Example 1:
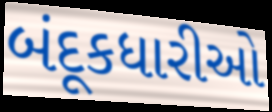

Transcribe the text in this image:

બંદૂકધારીઓ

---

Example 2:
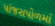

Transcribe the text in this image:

પાંજરાપોળમાં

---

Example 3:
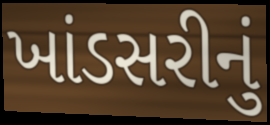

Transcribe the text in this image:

ખાંડસરીનું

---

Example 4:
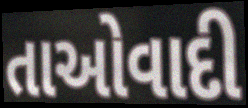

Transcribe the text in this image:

તાઓવાદી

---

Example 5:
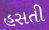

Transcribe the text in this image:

હસતી